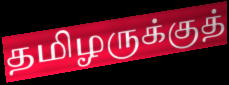
தமிழருக்குத்